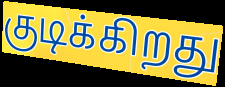
குடிக்கிறது